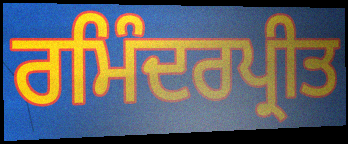
ਰਮਿੰਦਰਪ੍ਰੀਤ